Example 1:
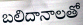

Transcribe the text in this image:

బలిదానాలతో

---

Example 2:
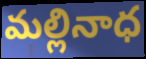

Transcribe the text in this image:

మల్లినాధ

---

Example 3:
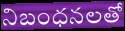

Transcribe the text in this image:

నిబంధనలతో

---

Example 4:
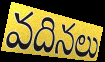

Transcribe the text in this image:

వదినలు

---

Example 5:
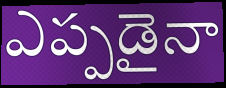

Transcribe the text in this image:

ఎప్పడైనా